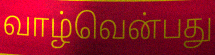
வாழ்வென்பது